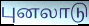
புனலாடு